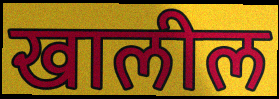
खालील